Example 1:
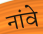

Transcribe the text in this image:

नांवे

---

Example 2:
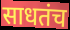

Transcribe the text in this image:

साधतंच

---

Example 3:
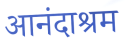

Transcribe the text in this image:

आनंदाश्रम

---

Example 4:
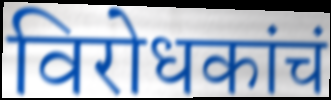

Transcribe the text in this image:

विरोधकांचं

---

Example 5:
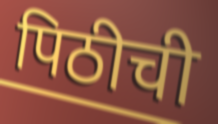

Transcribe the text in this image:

पिठीची